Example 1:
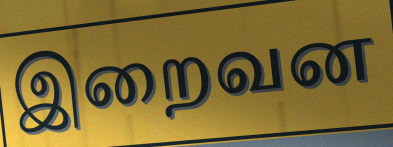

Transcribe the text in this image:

இறைவன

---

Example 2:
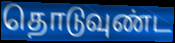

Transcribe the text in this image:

தொடுவுண்ட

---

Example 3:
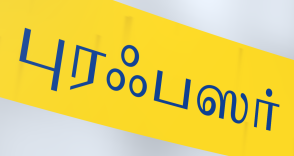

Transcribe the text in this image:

புரஃபஸர்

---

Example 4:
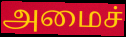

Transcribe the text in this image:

அமைச்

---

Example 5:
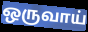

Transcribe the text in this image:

ஒருவாய்